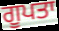
ਗੂਪਤਾ